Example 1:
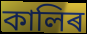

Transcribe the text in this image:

কালিৰ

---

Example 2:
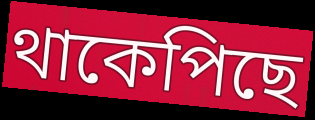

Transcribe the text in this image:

থাকেপিছে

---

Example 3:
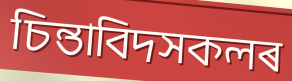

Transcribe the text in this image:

চিন্তাবিদসকলৰ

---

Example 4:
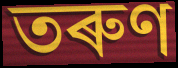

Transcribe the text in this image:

তৰুণ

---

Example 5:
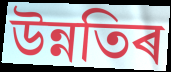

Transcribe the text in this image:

উন্নতিৰ